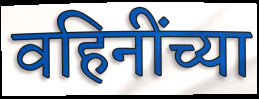
वहिनींच्या